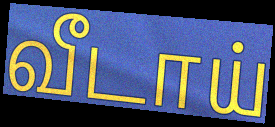
வீடாய்